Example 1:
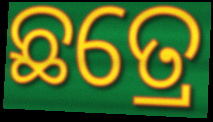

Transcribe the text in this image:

ଛତ୍ରେ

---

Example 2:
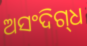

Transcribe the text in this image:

ଅସଂଦିଗ୍‌ଧ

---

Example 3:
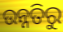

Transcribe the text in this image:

ଉନ୍ନତିରୁ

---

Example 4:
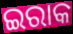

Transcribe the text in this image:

ଇରାକ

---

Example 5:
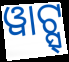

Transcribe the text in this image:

ୱାଟ୍ସ୍